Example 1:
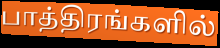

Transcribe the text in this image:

பாத்திரங்களில்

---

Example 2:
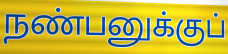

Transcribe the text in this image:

நண்பனுக்குப்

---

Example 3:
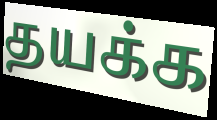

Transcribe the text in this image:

தயக்க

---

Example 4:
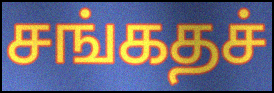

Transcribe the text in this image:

சங்கதச்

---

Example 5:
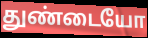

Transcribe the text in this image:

துண்டையோ